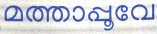
മത്താപ്പൂവേ